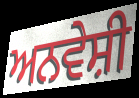
ਅਨਵੇਸ਼ੀ